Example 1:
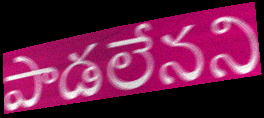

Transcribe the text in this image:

పాడలేనని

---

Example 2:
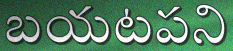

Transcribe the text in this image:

బయటపని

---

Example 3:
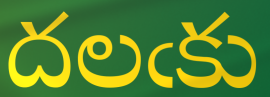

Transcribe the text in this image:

దలఁకు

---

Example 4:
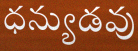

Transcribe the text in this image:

ధన్యుడవు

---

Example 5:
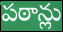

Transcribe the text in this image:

పఠాన్లు